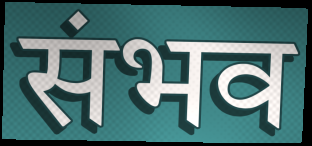
संभव